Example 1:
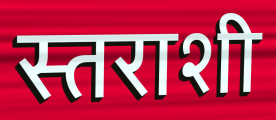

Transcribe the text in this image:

स्तराशी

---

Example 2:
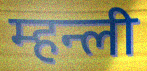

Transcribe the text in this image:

म्हन्ली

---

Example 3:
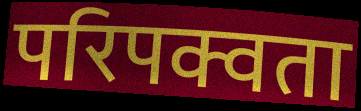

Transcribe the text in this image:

परिपक्वता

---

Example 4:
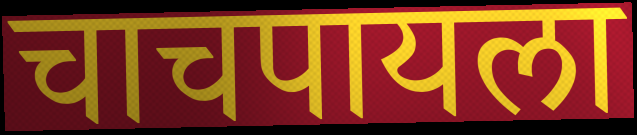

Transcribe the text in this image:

चाचपायला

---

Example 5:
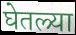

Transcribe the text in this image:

घेतल्या